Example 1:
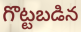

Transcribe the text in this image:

గొట్టబడిన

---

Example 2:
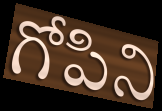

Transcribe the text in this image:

గోపిని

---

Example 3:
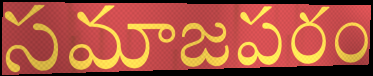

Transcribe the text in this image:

సమాజపరం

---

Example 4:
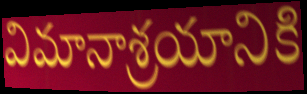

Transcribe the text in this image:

విమానాశ్రయానికి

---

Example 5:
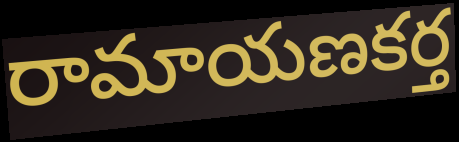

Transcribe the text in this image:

రామాయణకర్త